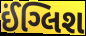
ઈંગ્લિશ